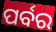
ପର୍ବର